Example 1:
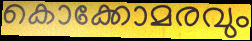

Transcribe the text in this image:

കൊക്കോമരവും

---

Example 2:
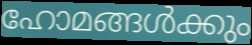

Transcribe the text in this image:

ഹോമങ്ങൾക്കും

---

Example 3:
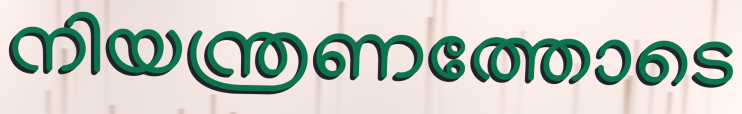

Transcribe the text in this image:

നിയന്ത്രണത്തോടെ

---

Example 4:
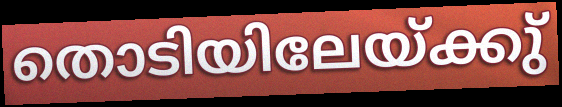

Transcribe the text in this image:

തൊടിയിലേയ്ക്കു്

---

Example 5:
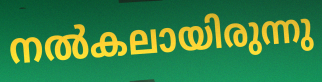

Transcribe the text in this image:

നൽകലായിരുന്നു